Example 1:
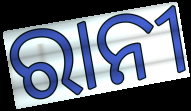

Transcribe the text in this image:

ରାନୀ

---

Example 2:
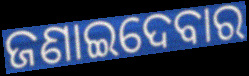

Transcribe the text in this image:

ଜଣାଇଦେବାର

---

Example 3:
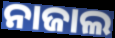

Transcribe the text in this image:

ନାଜାଲ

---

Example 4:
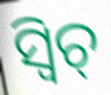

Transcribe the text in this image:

ସ୍ଵିଚ୍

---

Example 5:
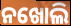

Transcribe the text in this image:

ନଖୋଲି